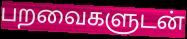
பறவைகளுடன்